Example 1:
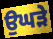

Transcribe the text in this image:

ਉਘੜੇ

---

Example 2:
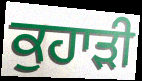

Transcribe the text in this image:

ਕੁਹਾੜੀ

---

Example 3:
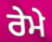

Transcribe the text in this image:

ਰੇਮੇ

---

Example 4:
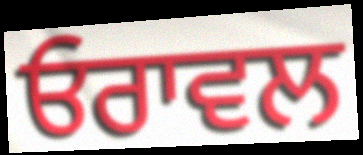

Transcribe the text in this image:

ਓਰਾਵਲ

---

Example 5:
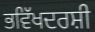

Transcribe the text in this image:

ਭਵਿੱਖਦਰਸ਼ੀ